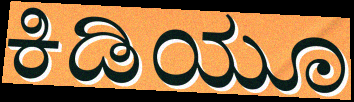
ಕಿಡಿಯೂ